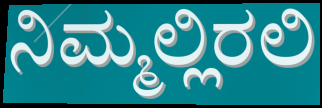
ನಿಮ್ಮಲ್ಲಿರಲಿ